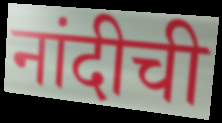
नांदीची